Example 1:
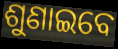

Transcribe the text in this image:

ଶୁଣାଇବେ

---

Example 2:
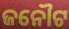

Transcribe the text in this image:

ଜନୌଟ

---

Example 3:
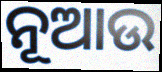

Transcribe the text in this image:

ନୂଆଉ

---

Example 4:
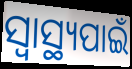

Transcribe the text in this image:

ସ୍ଵାସ୍ଥ୍ୟପାଇଁ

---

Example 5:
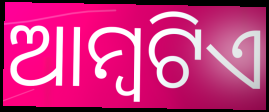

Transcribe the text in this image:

ଆମ୍ବଟିଏ